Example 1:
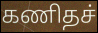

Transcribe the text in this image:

கணிதச்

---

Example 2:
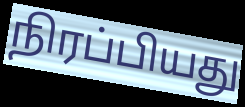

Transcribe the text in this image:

நிரப்பியது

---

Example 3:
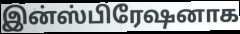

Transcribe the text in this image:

இன்ஸ்பிரேஷனாக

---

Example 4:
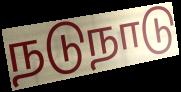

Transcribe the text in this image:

நடுநாடு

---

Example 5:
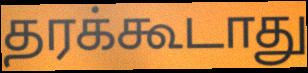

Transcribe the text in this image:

தரக்கூடாது